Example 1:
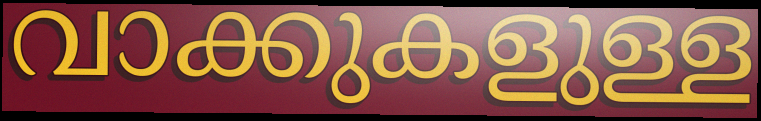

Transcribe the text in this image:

വാക്കുകളുള്ള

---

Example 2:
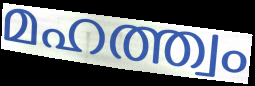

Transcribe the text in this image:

മഹത്ത്വം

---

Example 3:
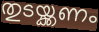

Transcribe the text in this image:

തുടയ്ക്കണം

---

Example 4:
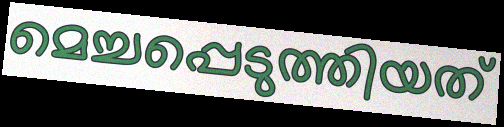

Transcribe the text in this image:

മെച്ചപ്പെടുത്തിയത്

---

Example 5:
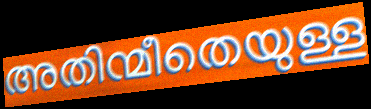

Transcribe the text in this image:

അതിന്മീതെയുള്ള